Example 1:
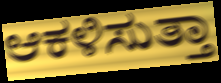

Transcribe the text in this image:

ಆಕಳಿಸುತ್ತಾ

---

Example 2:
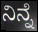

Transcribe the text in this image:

ನಿನ್ನೆ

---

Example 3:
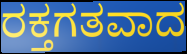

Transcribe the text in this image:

ರಕ್ತಗತವಾದ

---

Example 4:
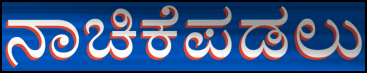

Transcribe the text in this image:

ನಾಚಿಕೆಪಡಲು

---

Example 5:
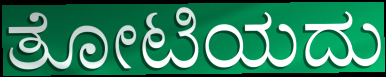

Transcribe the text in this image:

ತೋಟಿಯದು